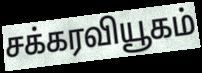
சக்கரவியூகம்